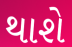
થાશે